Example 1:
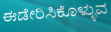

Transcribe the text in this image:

ಈಡೇರಿಸಿಕೊಳ್ಳುವ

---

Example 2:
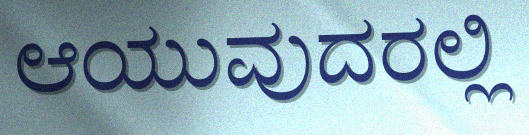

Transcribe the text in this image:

ಆಯುವುದರಲ್ಲಿ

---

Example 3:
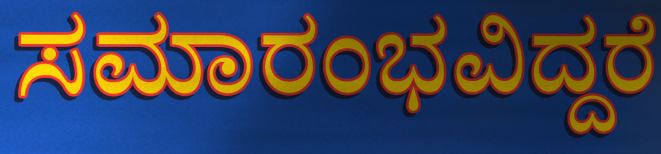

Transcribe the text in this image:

ಸಮಾರಂಭವಿದ್ದರೆ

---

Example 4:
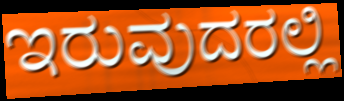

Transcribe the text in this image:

ಇರುವುದರಲ್ಲಿ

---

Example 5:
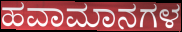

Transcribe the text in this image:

ಹವಾಮಾನಗಳ